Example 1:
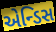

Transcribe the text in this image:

એન્ડિસ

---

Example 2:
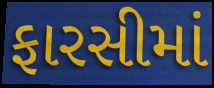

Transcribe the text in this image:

ફારસીમાં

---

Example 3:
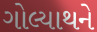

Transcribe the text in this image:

ગોલ્યાથને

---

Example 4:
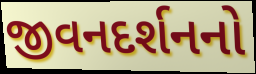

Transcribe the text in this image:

જીવનદર્શનનો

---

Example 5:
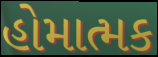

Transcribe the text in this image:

હોમાત્મક